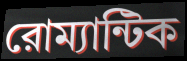
রোম্যান্টিক